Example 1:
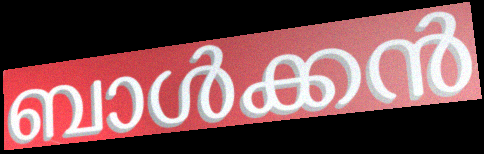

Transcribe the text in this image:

ബാൾക്കൻ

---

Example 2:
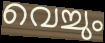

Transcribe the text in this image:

വെച്ചും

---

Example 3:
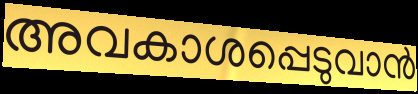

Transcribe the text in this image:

അവകാശപ്പെടുവാൻ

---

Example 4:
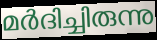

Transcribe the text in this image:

മർദിച്ചിരുന്നു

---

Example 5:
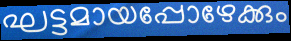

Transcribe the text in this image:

ഘട്ടമായപ്പോഴേക്കും